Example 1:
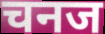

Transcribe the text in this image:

चनज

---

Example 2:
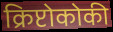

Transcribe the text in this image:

क्रिप्टोकोकी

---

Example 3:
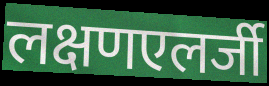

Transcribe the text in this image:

लक्षणएलर्जी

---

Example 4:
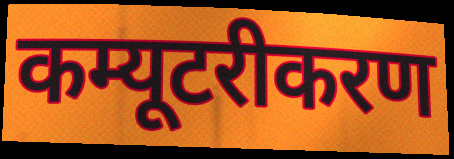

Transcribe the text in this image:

कम्यूटरीकरण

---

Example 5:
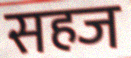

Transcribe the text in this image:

सहज